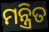
ମନ୍ତ୍ରିତ